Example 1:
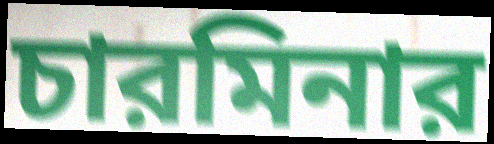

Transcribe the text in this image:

চারমিনার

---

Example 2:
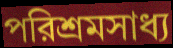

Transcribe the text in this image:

পরিশ্রমসাধ্য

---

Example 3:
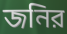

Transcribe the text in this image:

জনির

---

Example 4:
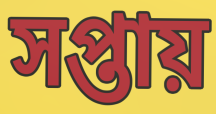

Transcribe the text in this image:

সপ্তায়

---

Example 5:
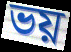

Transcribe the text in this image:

ভয়